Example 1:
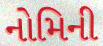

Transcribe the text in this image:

નોમિની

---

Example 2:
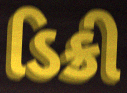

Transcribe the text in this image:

ડિક્રી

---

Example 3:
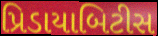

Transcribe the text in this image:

પ્રિડાયાબિટીસ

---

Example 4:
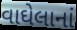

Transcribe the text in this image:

વાઘેલાનાં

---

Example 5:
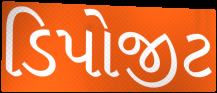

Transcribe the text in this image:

ડિપોજીટ